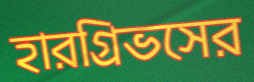
হারগ্রিভসের